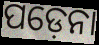
ପଡ଼େନା